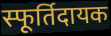
स्फूर्तिदायक